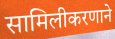
सामिलीकरणाने